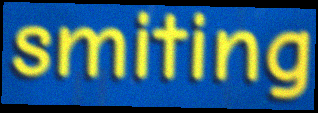
smiting